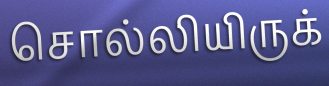
சொல்லியிருக்